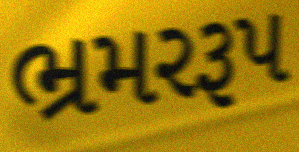
ભ્રમરરૂપ